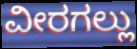
ವೀರಗಲ್ಲು